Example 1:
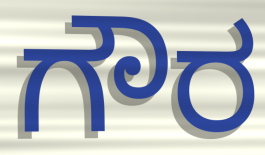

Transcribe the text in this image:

ಗೌರ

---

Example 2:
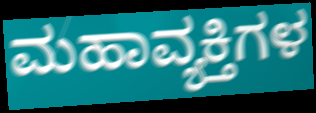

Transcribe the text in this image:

ಮಹಾವ್ಯಕ್ತಿಗಳ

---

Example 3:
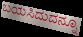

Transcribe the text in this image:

ಬಯಸಿದುದನ್ನೂ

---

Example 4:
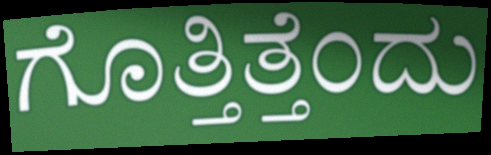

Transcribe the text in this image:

ಗೊತ್ತಿತ್ತೆಂದು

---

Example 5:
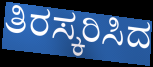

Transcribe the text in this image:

ತಿರಸ್ಕರಿಸಿದ